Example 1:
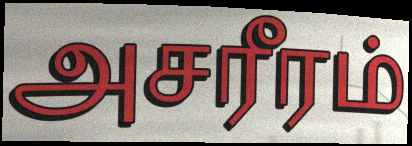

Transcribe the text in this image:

அசரீரம்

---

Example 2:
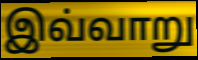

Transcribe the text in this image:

இவ்வாறு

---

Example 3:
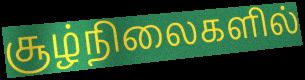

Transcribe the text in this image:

சூழ்நிலைகளில்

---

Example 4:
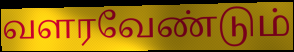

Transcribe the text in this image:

வளரவேண்டும்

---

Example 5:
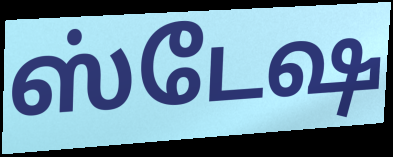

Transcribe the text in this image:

ஸ்டேஷ